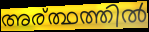
അര്ത്ഥത്തിൽ